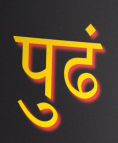
पुढं